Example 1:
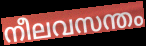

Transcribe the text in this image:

നീലവസന്തം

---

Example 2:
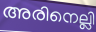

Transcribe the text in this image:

അരിനെല്ലി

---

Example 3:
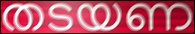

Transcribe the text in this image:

തടയണ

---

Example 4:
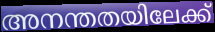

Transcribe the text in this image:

അനന്തതയിലേക്ക്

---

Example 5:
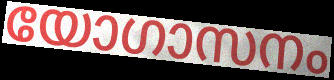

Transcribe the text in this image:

യോഗാസനം